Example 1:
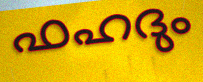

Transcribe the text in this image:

ഫഹദും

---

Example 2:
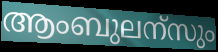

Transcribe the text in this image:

ആംബുലന്സും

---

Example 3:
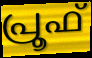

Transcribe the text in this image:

പ്രൂഫ്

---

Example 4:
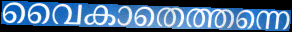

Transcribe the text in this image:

വൈകാതെത്തന്നെ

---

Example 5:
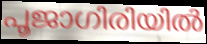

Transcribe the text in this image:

പൂജാഗിരിയിൽ